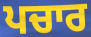
ਪਚਾਰ